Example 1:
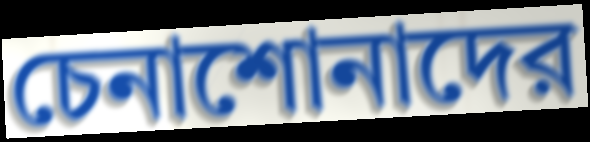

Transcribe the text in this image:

চেনাশোনাদের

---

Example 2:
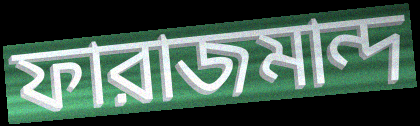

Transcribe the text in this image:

ফারাজমান্দ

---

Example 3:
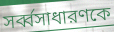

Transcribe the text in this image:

সর্ব্বসাধারণকে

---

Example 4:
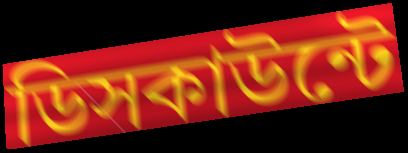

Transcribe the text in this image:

ডিসকাউন্টে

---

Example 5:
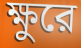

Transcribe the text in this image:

ক্ষুরে